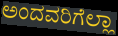
ಅಂದವರಿಗೆಲ್ಲಾ